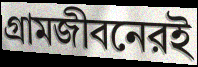
গ্রামজীবনেরই